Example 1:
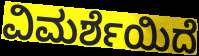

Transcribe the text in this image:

ವಿಮರ್ಶೆಯಿದೆ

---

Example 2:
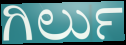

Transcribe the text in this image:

ಗಿರ್ಲು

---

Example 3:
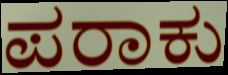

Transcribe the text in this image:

ಪರಾಕು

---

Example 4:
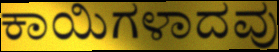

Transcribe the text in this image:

ಕಾಯಿಗಳಾದವು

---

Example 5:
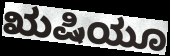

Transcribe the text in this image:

ಋಷಿಯೂ